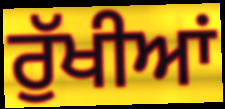
ਰੁੱਖੀਆਂ